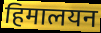
हिमालयन